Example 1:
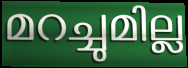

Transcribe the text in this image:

മറച്ചുമില്ല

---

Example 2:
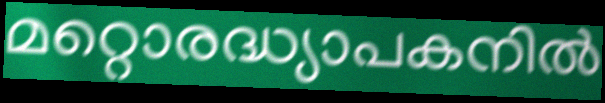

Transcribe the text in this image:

മറ്റൊരദ്ധ്യാപകനിൽ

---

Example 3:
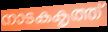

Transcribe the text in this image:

നാടകകൃത്ത്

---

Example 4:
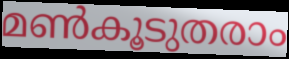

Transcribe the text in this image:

മൺകൂടുതരാം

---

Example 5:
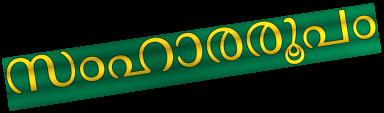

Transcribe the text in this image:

സംഹാരരൂപം